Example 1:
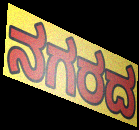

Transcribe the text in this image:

ನಗರದ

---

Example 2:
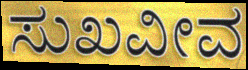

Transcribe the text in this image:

ಸುಖವೀವ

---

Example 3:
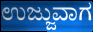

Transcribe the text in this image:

ಉಜ್ಜುವಾಗ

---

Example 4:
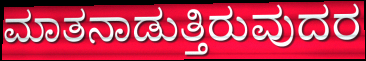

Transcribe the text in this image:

ಮಾತನಾಡುತ್ತಿರುವುದರ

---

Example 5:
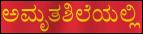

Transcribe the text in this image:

ಅಮೃತಶಿಲೆಯಲ್ಲಿ